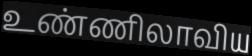
உண்ணிலாவிய